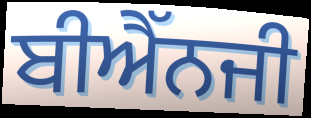
ਬੀਐੱਨਜੀ